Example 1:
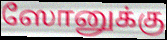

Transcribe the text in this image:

ஸோனுக்கு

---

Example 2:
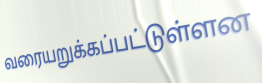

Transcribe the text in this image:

வரையறுக்கப்பட்டுள்ளன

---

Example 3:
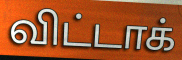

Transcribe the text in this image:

விட்டாக்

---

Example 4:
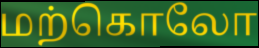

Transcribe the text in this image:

மற்கொலோ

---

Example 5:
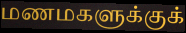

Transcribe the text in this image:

மணமகளுக்குக்